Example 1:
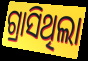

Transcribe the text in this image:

ଗ୍ରାସିଥିଲା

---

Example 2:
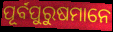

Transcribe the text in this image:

ପୂର୍ବପୁରୁଷମାନେ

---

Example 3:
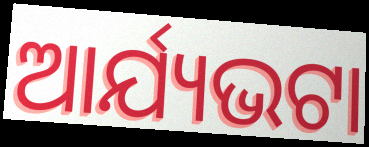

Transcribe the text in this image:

ଆର୍ଯ୍ୟଭଟା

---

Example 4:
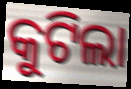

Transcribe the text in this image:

କୁଟିଲା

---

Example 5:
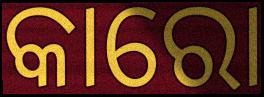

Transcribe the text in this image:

କାରୋ